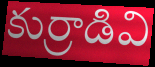
కుర్రాడివి